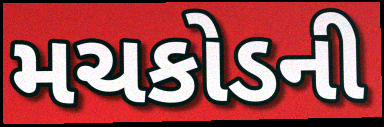
મચકોડની